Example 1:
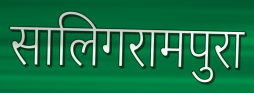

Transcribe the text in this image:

सालिगरामपुरा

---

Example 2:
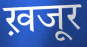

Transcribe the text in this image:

ख़जूर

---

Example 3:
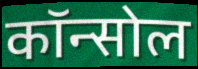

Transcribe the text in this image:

कॉन्सोल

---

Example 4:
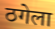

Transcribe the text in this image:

ठगेला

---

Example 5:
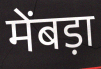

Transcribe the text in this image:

मेंबड़ा